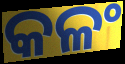
କଳଂ